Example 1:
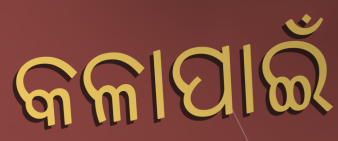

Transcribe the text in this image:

କଳାପାଇଁ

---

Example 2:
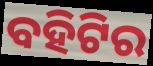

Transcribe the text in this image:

ବହିଟିର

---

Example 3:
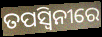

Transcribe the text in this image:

ତପସ୍ଵିନୀରେ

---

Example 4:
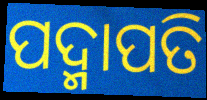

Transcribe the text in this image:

ପଦ୍ମାପତି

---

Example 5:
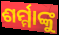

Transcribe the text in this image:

ଶର୍ମ୍ମାଙ୍କୁ